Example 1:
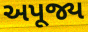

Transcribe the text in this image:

અપૂજ્ય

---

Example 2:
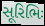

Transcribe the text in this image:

સૂરિભિઃ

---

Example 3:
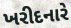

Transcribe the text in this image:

ખરીદનારે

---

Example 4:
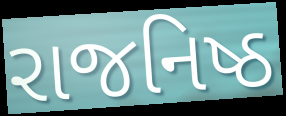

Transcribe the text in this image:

રાજનિષ્ઠ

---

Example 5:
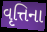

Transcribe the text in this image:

વૃત્તિના